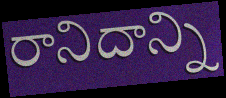
రానిదాన్ని